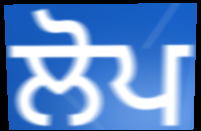
ਲੋਪ